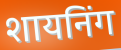
शायनिंग